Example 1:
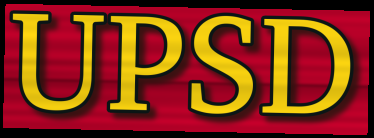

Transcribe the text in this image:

UPSD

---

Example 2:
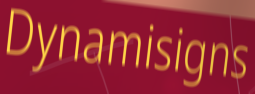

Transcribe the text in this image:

Dynamisigns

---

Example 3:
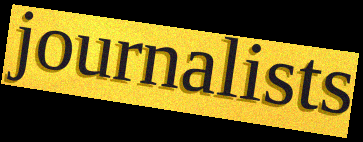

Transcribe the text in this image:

journalists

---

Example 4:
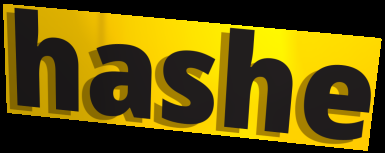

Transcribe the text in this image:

hashe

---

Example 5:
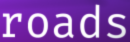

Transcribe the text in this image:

roads